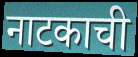
नाटकाची